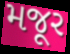
મજૂર